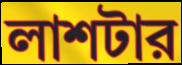
লাশটার